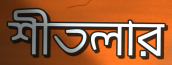
শীতলার